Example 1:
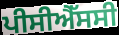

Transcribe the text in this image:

ਪੀਸੀਐੱਸਸੀ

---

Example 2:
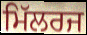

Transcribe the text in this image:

ਮਿੱਲਰਜ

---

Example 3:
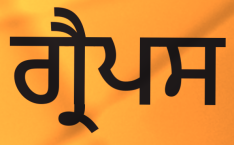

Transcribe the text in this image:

ਗ੍ਰੈਪਸ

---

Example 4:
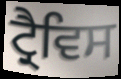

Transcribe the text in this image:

ਟ੍ਰੈਵਿਸ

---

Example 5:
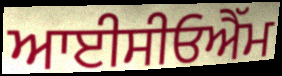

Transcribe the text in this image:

ਆਈਸੀਓਐੱਮ